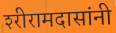
श्रीरामदासांनी